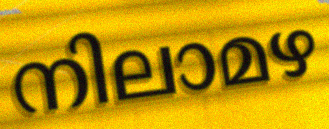
നിലാമഴ